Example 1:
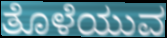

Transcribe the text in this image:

ತೊಳೆಯುವ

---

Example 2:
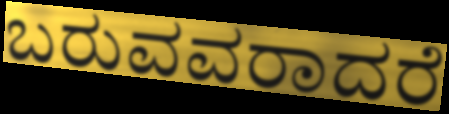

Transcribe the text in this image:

ಬರುವವರಾದರೆ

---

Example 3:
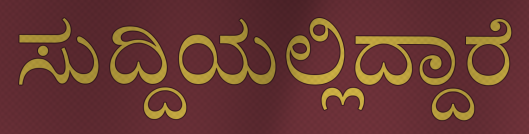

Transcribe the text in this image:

ಸುದ್ದಿಯಲ್ಲಿದ್ದಾರೆ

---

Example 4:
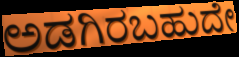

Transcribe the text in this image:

ಅಡಗಿರಬಹುದೇ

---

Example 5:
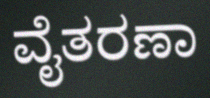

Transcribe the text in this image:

ವೈತರಣಾ